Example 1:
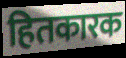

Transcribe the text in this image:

हितकारक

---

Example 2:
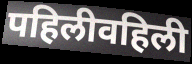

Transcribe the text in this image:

पहिलीवहिली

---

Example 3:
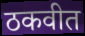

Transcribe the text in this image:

ठकवीत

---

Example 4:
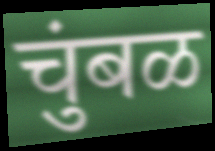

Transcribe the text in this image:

चुंबळ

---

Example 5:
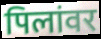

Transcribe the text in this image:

पिलांवर